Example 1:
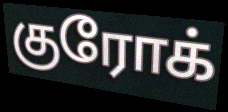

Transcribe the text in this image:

குரோக்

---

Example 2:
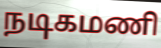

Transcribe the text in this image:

நடிகமணி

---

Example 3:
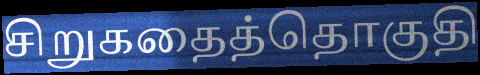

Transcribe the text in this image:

சிறுகதைத்தொகுதி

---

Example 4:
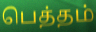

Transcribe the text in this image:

பெத்தம்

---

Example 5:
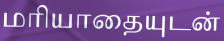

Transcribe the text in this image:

மரியாதையுடன்